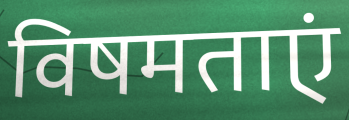
विषमताएं